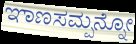
ಞಾಣಸಮ್ಪನ್ನೋ